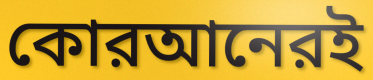
কোরআনেরই